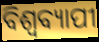
ବିଶ୍ଵବ୍ୟାପୀ